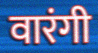
वारंगी